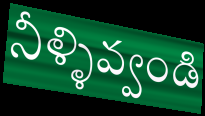
నీళ్ళివ్వండి